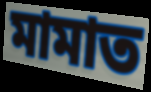
মামাত